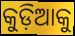
କୁଡ଼ିଆକୁ